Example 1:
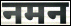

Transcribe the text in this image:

नमन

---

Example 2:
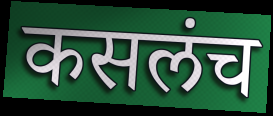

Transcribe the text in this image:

कसलंच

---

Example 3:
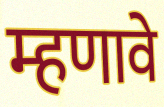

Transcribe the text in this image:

म्हणावे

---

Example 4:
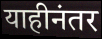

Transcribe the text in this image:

याहीनंतर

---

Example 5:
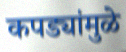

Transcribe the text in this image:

कपड्यांमुळे